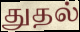
துதல்